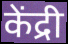
केंद्री